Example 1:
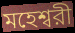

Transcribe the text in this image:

মহেশ্বরী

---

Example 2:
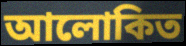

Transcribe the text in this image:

আলোকিত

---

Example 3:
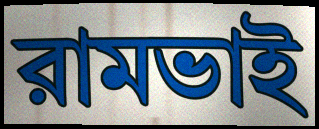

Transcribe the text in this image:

রামভাই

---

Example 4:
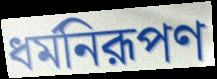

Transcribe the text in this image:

ধর্মনিরূপণ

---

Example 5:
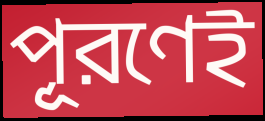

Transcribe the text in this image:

পূরণেই